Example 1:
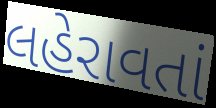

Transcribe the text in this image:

લહેરાવતાં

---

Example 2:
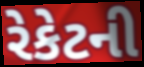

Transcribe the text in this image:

રેકેટની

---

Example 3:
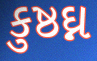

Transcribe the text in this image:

કુષ્ઠઘ્ન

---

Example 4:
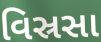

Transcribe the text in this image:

વિસ્રસા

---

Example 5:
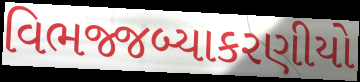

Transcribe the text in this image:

વિભજ્જબ્યાકરણીયો